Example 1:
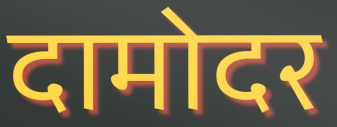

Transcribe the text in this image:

दामोदर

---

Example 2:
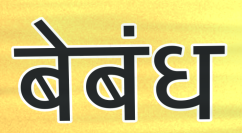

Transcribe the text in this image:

बेबंध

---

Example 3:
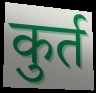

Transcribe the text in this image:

कुर्त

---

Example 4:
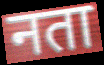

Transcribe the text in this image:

नता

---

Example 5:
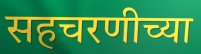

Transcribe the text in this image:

सहचरणीच्या